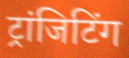
ट्रांजिटिंग